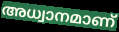
അധ്വാനമാണ്